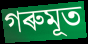
গৰুমূত